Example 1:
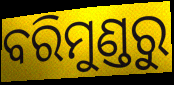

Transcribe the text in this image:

ବରିମୁଣ୍ଡରୁ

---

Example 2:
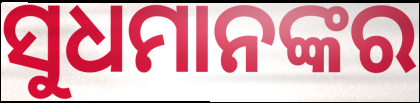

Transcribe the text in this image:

ସୁଧମାନଙ୍କର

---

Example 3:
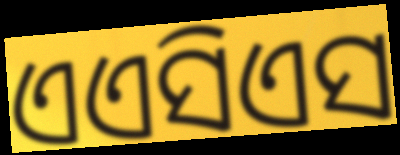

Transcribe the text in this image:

ଏଏସିଏସ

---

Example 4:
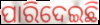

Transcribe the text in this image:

ପାରିଦେଇଛି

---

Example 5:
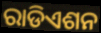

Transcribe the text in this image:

ରାଡିଏଶନ